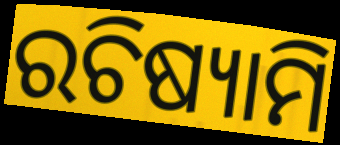
ରଚିଷ୍ୟାମି